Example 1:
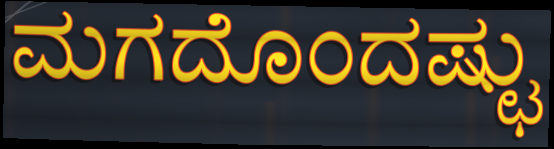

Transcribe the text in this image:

ಮಗದೊಂದಷ್ಟು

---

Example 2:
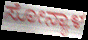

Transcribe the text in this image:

ಸೋನ್ಯಾಳ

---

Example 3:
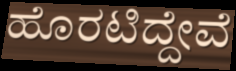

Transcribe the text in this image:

ಹೊರಟಿದ್ದೇವೆ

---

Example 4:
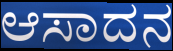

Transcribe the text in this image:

ಆಸಾದನ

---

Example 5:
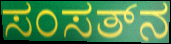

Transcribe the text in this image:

ಸಂಸತ್‌ನ